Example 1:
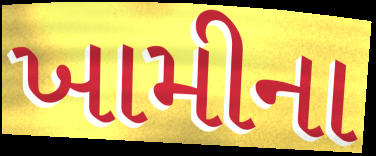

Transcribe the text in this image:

ખામીના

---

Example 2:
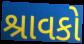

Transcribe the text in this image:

શ્રાવકો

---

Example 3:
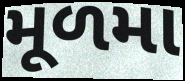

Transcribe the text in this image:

મૂળમા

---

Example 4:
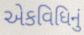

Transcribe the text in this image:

એકવિધિનું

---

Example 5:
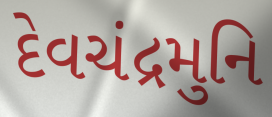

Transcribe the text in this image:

દેવચંદ્રમુનિ